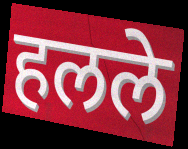
हलले